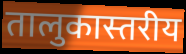
तालुकास्तरीय